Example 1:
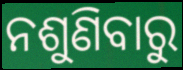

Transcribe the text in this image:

ନଶୁଣିବାରୁ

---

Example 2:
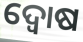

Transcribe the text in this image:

ଦ୍ୱୋଷ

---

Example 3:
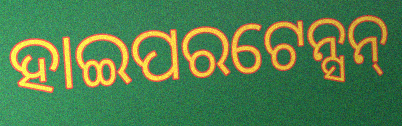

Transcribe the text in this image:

ହାଇପରଟେନ୍ସନ୍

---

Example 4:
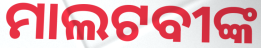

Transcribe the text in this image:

ମାଲଟବୀଙ୍କ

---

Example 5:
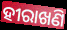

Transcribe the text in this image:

ହୀରାଖଣି